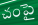
చంపై